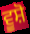
ਵੂਸ਼ੋ